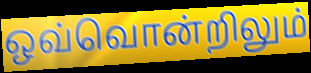
ஒவ்வொன்றிலும்